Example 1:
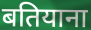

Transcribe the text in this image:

बतियाना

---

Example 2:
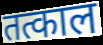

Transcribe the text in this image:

तत्काल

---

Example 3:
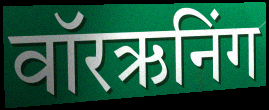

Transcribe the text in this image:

वॉरऋनिंग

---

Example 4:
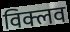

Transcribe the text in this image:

विक्लव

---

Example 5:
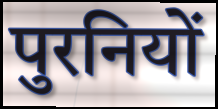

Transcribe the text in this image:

पुरनियों